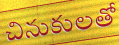
చినుకులతో